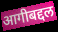
आगीबद्दल